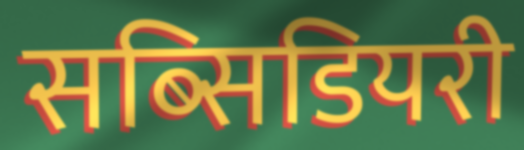
सब्सिडियरी